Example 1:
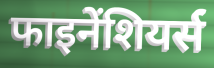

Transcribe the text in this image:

फाइनेंशियर्स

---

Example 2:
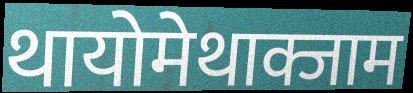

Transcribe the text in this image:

थायोमेथाक्जाम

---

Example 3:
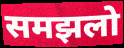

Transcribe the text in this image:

समझलो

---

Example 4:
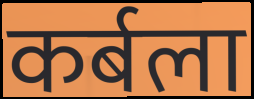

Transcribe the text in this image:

कर्बला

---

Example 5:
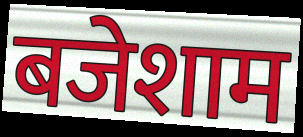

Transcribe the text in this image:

बजेशाम